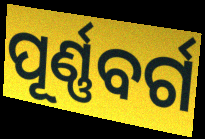
ପୂର୍ଣ୍ଣବର୍ଗ